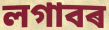
লগাবৰ